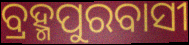
ବ୍ରହ୍ମପୁରବାସୀ